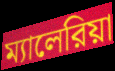
ম্যালেরিয়া